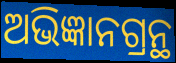
ଅଭିଜ୍ଞାନଗ୍ରନ୍ଥ